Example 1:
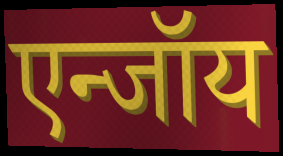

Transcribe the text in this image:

एन्जॉय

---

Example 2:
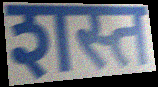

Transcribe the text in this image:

शस्त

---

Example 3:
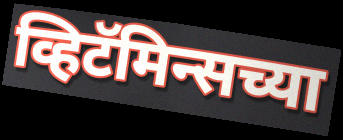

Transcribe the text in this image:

व्हिटॅमिन्सच्या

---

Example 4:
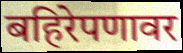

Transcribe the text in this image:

बहिरेपणावर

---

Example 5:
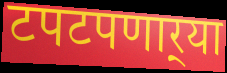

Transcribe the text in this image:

टपटपणार्या